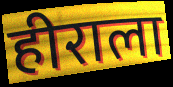
हीराला